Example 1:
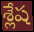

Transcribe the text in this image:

శ్లేష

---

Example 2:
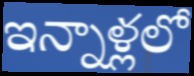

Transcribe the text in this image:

ఇన్నాళ్లలో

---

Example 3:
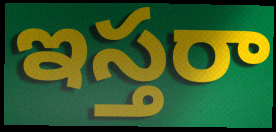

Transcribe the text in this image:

ఇస్తరా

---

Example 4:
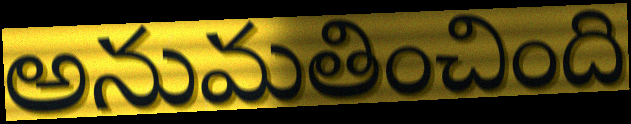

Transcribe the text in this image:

అనుమతించింది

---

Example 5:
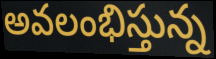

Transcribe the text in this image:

అవలంభిస్తున్న